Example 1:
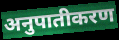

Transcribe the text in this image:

अनुपातीकरण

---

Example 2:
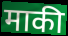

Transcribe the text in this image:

माकी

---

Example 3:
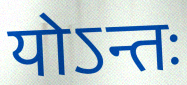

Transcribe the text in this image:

योऽन्तः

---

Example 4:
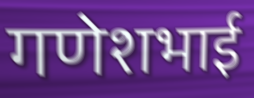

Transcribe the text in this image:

गणेशभाई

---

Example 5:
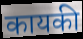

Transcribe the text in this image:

कायकी